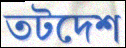
তটদেশ